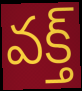
వక్త్